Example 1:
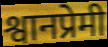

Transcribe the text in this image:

श्वानप्रेमी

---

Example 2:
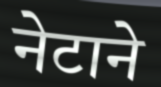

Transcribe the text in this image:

नेटाने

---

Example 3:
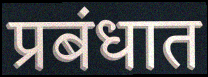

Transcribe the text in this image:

प्रबंधात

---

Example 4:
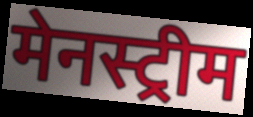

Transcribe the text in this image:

मेनस्ट्रीम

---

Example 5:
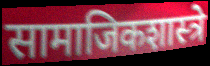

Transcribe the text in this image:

सामाजिकशास्त्रे